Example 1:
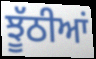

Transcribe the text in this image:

ਝੂੱਠੀਆਂ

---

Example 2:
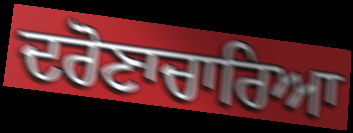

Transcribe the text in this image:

ਦਰੋਣਾਚਾਰਿਆ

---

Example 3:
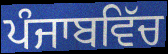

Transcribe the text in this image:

ਪੰਜਾਬਵਿੱਚ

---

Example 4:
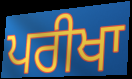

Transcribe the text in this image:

ਪਰੀਖਾ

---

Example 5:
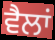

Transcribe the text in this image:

ਵੈਲਾਂ